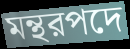
মন্থরপদে